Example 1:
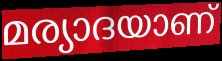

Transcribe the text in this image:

മര്യാദയാണ്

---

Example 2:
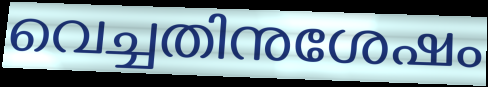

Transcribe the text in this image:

വെച്ചതിനുശേഷം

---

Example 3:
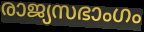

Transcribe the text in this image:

രാജ്യസഭാംഗം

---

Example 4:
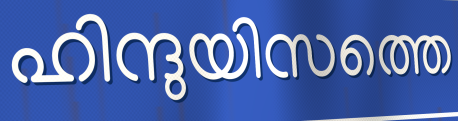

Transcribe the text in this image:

ഹിന്ദുയിസത്തെ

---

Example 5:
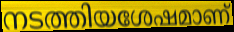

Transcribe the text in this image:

നടത്തിയശേഷമാണ്